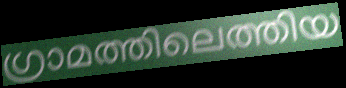
ഗ്രാമത്തിലെത്തിയ